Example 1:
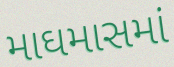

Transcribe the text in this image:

માઘમાસમાં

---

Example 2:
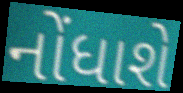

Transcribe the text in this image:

નોંધાશે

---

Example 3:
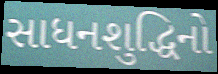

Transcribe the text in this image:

સાધનશુદ્ધિનો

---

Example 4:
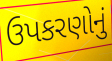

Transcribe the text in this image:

ઉપકરણોનું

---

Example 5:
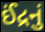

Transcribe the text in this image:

ઈંદ્રનું